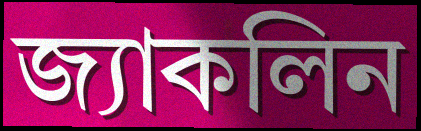
জ্যাকলিন